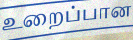
உறைப்பான